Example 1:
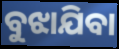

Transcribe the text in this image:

ବୁଝାଯିବା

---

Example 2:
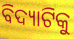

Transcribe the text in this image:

ବିଦ୍ୟାଟିକୁ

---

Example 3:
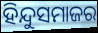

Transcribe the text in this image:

ହିନ୍ଦୁସମାଜର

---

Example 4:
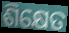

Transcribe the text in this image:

ଶିକ୍ଷେତ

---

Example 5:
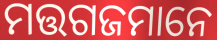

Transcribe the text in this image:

ମତ୍ତଗଜମାନେ